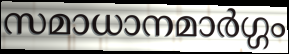
സമാധാനമാർഗ്ഗം